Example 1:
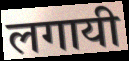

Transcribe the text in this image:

लगायी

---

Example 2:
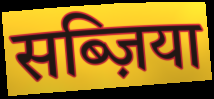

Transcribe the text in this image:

सब्ज़िया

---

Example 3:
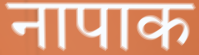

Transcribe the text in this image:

नापाक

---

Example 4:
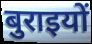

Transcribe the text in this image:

बुराइयों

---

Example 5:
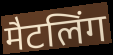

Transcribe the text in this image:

मैटलिंग